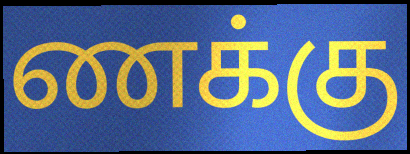
ணக்கு